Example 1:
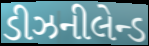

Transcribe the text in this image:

ડીઝનીલેન્ડ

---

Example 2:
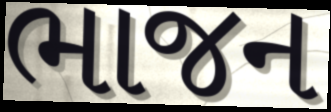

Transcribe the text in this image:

ભાજન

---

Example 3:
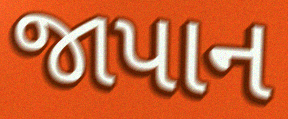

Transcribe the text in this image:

જાપાન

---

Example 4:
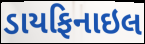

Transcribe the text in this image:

ડાયફિનાઇલ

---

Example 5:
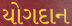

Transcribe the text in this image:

યોગદાન